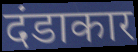
दंडाकार